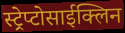
स्ट्रेप्टोसाईक्लिन